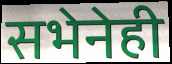
सभेनेही